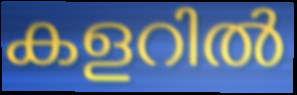
കളറിൽ